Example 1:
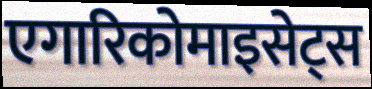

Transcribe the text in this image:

एगारिकोमाइसेट्स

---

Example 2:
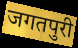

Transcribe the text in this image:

जगतपुरी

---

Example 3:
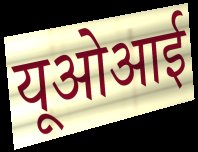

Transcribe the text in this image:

यूओआई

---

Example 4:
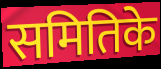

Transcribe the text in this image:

समितिके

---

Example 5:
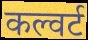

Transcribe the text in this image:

कल्वर्ट